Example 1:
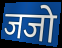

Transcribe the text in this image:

जजो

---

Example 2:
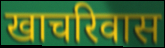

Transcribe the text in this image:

खाचरिवास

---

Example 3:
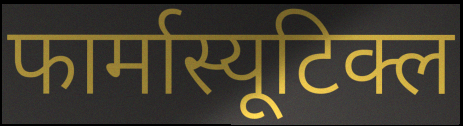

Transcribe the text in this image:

फार्मास्यूटिक्ल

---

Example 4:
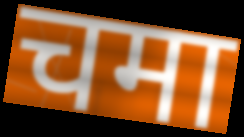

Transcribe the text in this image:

चमा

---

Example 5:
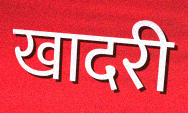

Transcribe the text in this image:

खादरी